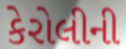
કેરોલીની